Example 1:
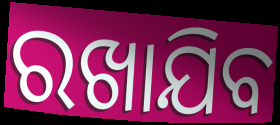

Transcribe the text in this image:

ରଖାଯିବ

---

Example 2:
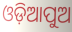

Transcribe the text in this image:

ଓଡ଼ିଆପୁଅ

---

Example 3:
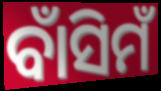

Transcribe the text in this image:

ବାଁସିମଁ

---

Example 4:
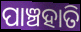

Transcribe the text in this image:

ପାଞ୍ଚହାତି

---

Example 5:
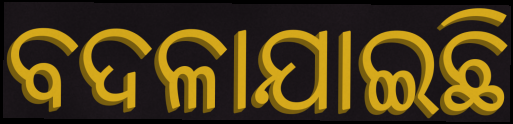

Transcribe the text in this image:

ବଦଳାଯାଇଛି